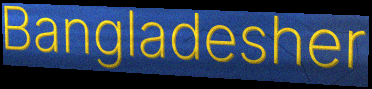
Bangladesher